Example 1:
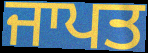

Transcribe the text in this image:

ਜਾਪਤ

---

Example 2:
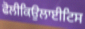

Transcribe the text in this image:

ਫੋਲੀਕਿਉਲਾਈਟਿਸ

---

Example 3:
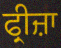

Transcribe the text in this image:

ਫ੍ਰੀਜ਼ਾ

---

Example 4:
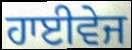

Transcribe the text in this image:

ਹਾਈਵੇਜ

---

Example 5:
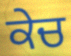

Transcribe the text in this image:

ਕੇਚ